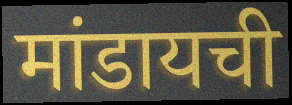
मांडायची